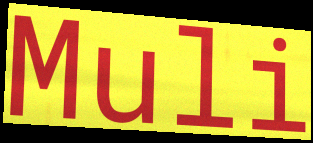
Muli